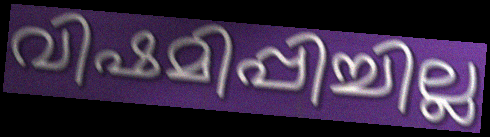
വിഷമിപ്പിച്ചില്ല